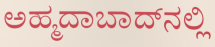
ಅಹ್ಮದಾಬಾದ್‍ನಲ್ಲಿ